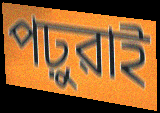
পঢ়ুৱাই